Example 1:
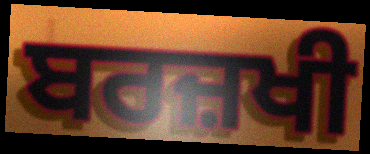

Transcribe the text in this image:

ਬਰਜ਼ਖੀ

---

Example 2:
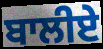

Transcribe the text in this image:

ਬਾਲੀਏ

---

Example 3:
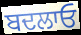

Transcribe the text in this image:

ਬਦਲਾਓ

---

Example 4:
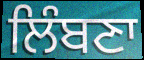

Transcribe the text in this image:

ਲਿੰਬਣਾ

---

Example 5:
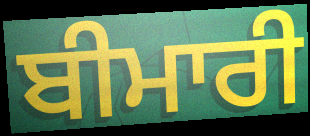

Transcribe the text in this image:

ਬੀਮਾਰੀ